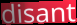
disant